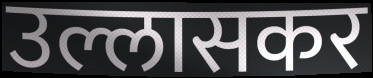
उल्लासकर